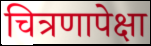
चित्रणापेक्षा